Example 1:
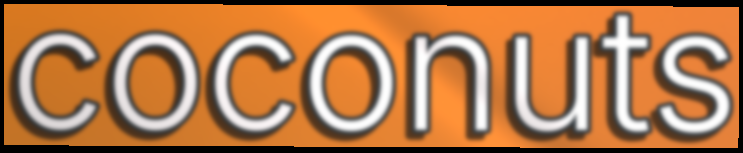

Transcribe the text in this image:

coconuts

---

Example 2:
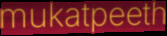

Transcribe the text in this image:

mukatpeeth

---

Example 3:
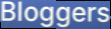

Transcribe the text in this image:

Bloggers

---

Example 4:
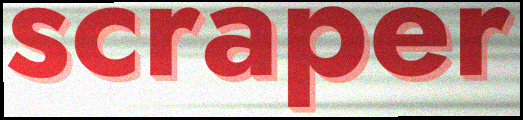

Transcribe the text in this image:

scraper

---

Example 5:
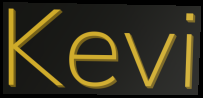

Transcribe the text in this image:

Kevi